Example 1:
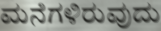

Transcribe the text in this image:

ಮನೆಗಳಿರುವುದು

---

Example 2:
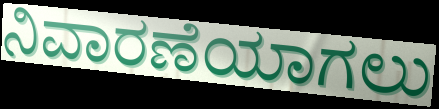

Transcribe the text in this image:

ನಿವಾರಣೆಯಾಗಲು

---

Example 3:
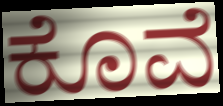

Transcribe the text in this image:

ಕೊವೆ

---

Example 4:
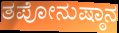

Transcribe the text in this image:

ತಪೋನುಷ್ಠಾನ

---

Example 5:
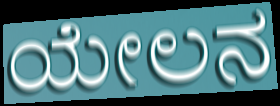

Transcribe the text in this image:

ಯೇಲನ